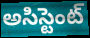
అసిస్టెంట్